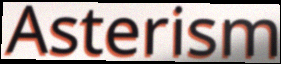
Asterism